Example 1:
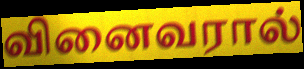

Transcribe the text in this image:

வினைவரால்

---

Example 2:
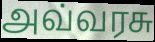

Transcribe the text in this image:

அவ்வரசு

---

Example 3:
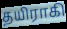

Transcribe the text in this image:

தயிராகி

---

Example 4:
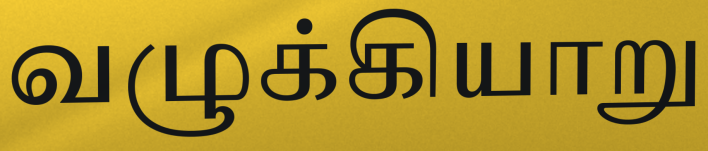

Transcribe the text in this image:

வழுக்கியாறு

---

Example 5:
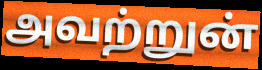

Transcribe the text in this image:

அவற்றுன்